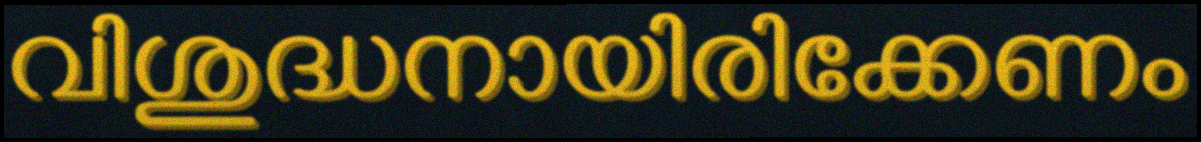
വിശുദ്ധനായിരിക്കേണം